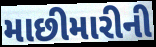
માછીમારીની